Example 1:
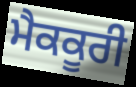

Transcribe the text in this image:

ਮੈਕਕੂਰੀ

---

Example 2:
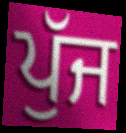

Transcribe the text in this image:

ਪੁੱਜ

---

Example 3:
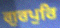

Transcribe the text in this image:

ਗੁਰਪੁਰਿ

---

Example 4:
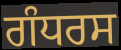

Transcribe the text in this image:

ਗੰਧਰਸ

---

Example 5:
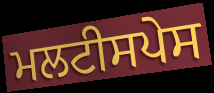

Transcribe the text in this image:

ਮਲਟੀਸਪੇਸ